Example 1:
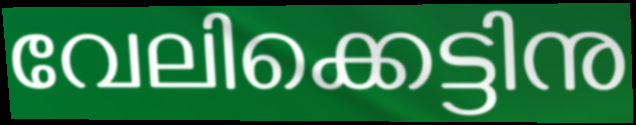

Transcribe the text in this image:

വേലിക്കെട്ടിനു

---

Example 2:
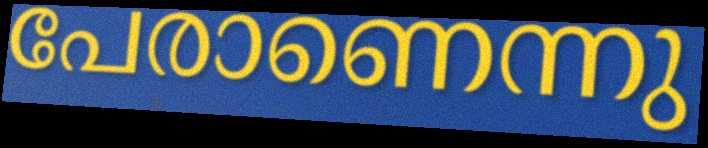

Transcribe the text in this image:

പേരാണെന്നു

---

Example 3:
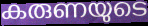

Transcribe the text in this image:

കരുണയുടെ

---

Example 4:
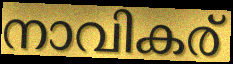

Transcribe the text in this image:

നാവികര്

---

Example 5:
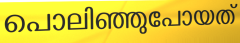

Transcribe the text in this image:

പൊലിഞ്ഞുപോയത്